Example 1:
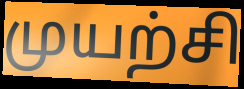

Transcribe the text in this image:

முயற்சி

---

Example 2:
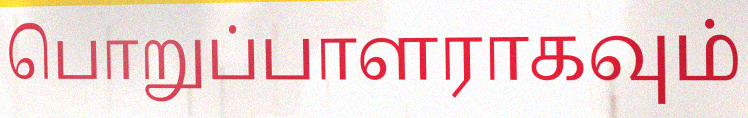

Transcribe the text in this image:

பொறுப்பாளராகவும்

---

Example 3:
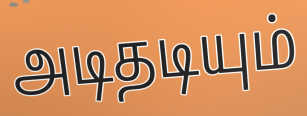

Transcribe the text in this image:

அடிதடியும்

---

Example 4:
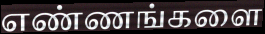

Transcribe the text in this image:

எண்ணங்களை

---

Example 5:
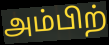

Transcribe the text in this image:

அம்பிற்